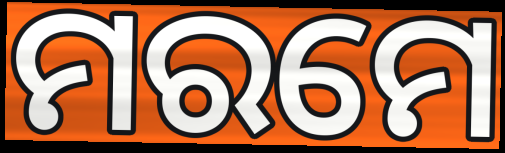
ମରମେ